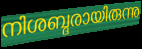
നിശബ്ദരായിരുന്നു